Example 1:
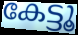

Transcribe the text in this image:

കേട്ടൂ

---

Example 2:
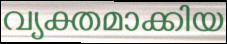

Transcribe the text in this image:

വ്യക്തമാക്കിയ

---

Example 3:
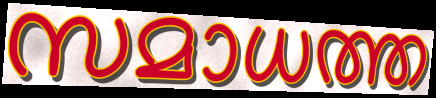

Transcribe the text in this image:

സമാധത്ത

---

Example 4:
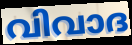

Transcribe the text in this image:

വിവാദ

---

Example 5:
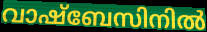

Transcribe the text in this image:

വാഷ്ബേസിനിൽ